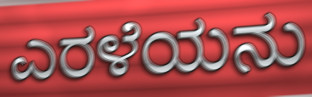
ಎರಳೆಯನು